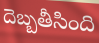
దెబ్బతీసింది